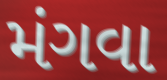
મંગવા